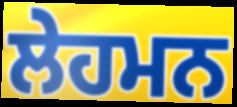
ਲੇਹਮਨ